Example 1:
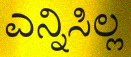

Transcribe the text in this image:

ಎನ್ನಿಸಿಲ್ಲ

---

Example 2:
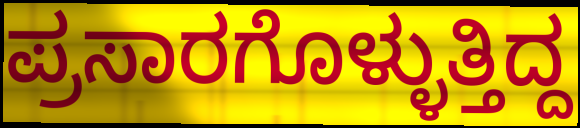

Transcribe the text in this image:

ಪ್ರಸಾರಗೊಳ್ಳುತ್ತಿದ್ದ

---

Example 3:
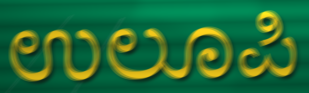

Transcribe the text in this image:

ಉಲೂಪಿ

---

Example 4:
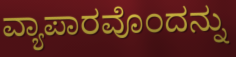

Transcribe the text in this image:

ವ್ಯಾಪಾರವೊಂದನ್ನು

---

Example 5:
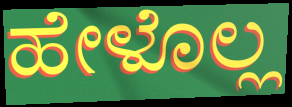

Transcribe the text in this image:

ಹೇಳೊಲ್ಲ